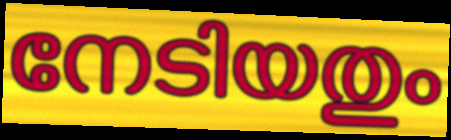
നേടിയതും